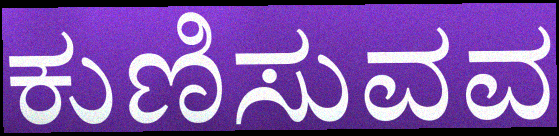
ಕುಣಿಸುವವ